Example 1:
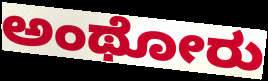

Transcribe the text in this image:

ಅಂಥೋರು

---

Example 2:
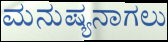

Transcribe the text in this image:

ಮನುಷ್ಯನಾಗಲು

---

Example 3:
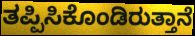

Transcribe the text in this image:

ತಪ್ಪಿಸಿಕೊಂಡಿರುತ್ತಾನೆ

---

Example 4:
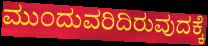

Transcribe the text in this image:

ಮುಂದುವರಿದಿರುವುದಕ್ಕೆ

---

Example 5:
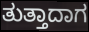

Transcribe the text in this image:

ತುತ್ತಾದಾಗ